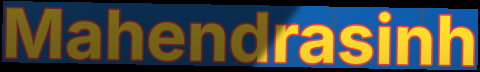
Mahendrasinh